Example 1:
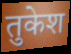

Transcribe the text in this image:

तुकेश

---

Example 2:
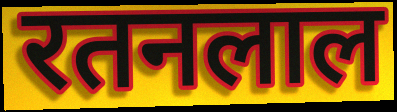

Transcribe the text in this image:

रतनलाल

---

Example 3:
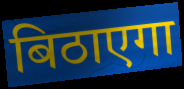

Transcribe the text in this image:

बिठाएगा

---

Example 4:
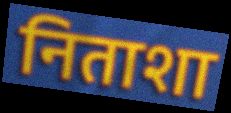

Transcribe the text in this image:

निताशा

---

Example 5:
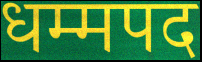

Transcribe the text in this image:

धम्मपद